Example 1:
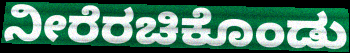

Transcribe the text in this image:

ನೀರೆರಚಿಕೊಂಡು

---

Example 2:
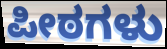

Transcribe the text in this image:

ಪೀಠಗಳು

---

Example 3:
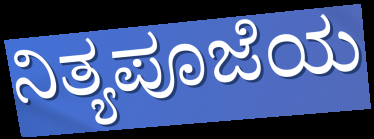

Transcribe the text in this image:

ನಿತ್ಯಪೂಜೆಯ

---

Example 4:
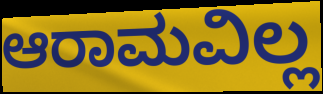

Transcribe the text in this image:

ಆರಾಮವಿಲ್ಲ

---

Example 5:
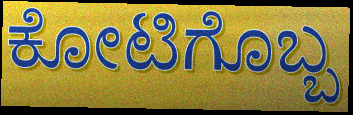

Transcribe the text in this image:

ಕೋಟಿಗೊಬ್ಬ